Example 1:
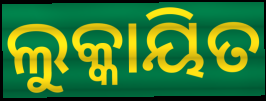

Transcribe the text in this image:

ଲୁକ୍କାୟିତ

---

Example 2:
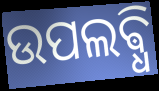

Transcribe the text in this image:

ଉପଲଵ୍ଧି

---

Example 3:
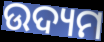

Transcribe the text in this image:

ଉଦ୍ୟମ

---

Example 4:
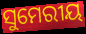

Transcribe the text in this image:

ସୁମେରୀୟ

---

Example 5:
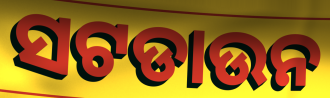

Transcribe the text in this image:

ସଟଡାଉନ